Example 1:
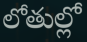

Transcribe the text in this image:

లోతుల్లో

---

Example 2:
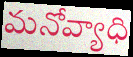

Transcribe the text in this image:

మనోవ్యాధి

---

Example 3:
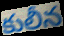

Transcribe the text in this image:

కులీన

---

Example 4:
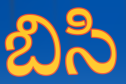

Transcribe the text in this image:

బిసి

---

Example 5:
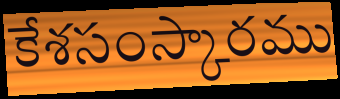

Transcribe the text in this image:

కేశసంస్కారము